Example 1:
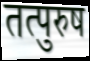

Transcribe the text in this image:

तत्पुरुष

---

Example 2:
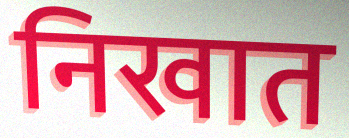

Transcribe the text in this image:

निखात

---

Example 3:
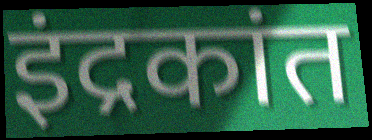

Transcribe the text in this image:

इंद्रकांत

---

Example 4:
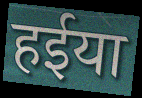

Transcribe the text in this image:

हईया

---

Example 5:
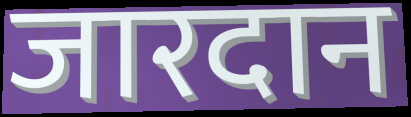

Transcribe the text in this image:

जारदान